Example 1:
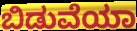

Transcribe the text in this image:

ಬಿಡುವೆಯಾ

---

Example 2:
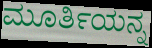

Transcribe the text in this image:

ಮೂರ್ತಿಯನ್ನ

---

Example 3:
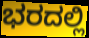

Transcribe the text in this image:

ಭರದಲ್ಲಿ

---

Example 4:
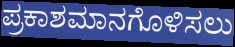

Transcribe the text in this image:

ಪ್ರಕಾಶಮಾನಗೊಳಿಸಲು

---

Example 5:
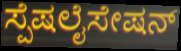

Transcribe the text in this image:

ಸ್ಪೆಷಲೈಸೇಷನ್